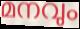
മനവും